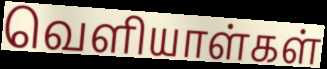
வெளியாள்கள்